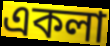
একলা